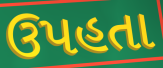
ઉપહતા